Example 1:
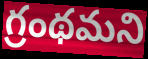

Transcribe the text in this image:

గ్రంథమని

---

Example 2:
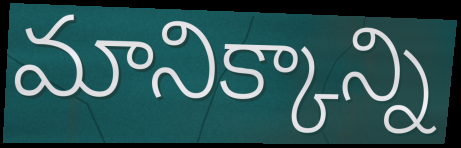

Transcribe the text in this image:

మానిక్కాన్ని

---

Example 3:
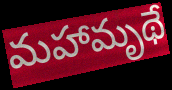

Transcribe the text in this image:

మహామృథే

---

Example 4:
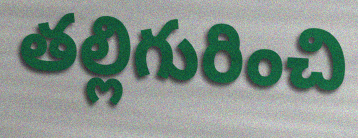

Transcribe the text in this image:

తల్లిగురించి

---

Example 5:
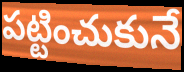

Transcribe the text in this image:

పట్టించుకునే